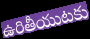
ఉరితీయుటకు